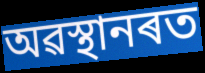
অৱস্থানৰত